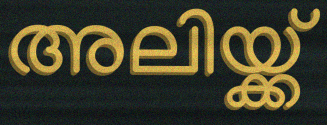
അലിയ്ക്ക്